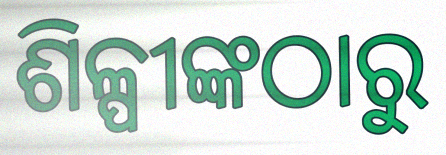
ଶିଳ୍ପୀଙ୍କଠାରୁ